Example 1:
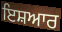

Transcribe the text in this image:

ਇਸ਼ਆਰ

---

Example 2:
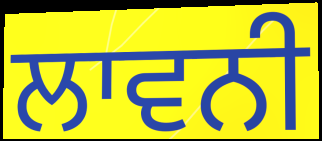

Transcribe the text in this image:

ਲਾਵਨੀ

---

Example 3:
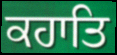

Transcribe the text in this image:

ਕਹਾਤਿ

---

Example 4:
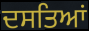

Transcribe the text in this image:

ਦਸਤਿਆਂ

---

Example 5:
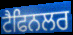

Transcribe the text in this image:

ਟੈਫਿਨਲਰ